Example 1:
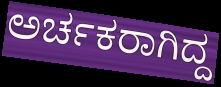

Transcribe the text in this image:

ಅರ್ಚಕರಾಗಿದ್ದ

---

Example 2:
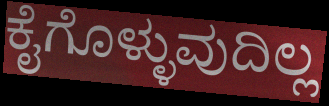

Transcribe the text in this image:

ಕೈಗೊಳ್ಳುವುದಿಲ್ಲ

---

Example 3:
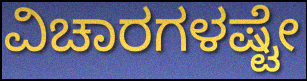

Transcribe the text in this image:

ವಿಚಾರಗಳಷ್ಟೇ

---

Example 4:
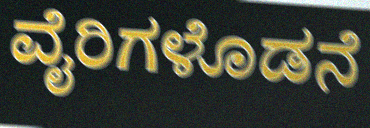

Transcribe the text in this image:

ವೈರಿಗಳೊಡನೆ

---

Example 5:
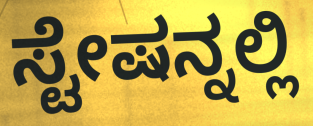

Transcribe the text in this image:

ಸ್ಟೇಷನ್ನಲ್ಲಿ